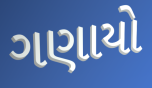
ગણાયો